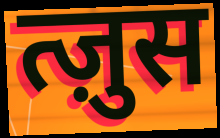
त्ज़ुस